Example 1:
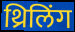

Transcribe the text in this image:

थ्रिलिंग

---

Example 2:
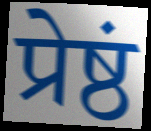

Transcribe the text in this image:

प्रेष्ठं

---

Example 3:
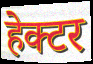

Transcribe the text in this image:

हेक्टर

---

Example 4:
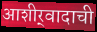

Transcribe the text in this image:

आशीर्वादाची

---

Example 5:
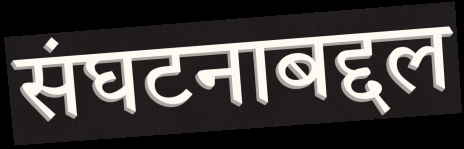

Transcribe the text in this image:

संघटनाबद्दल